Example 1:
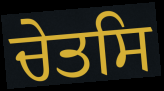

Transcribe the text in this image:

ਚੇਤਸਿ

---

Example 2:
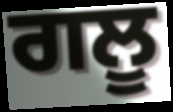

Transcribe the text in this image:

ਗਲੂ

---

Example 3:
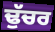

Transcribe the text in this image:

ਢੁੱਚਰ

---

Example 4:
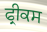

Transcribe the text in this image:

ਫ੍ਰੀਕਸ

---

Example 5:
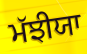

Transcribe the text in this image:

ਮੱਝੀਯਾ